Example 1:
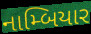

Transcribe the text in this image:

નામ્બિયાર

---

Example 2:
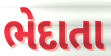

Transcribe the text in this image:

ભેદાતા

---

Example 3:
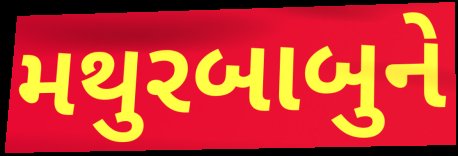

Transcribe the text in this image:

મથુરબાબુને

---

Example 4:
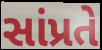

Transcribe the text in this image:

સાંપ્રતે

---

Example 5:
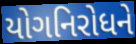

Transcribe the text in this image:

યોગનિરોધને